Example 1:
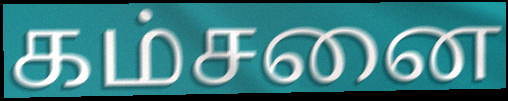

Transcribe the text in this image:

கம்சனை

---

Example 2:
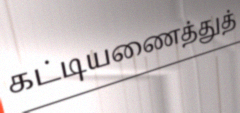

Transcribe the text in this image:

கட்டியணைத்துத்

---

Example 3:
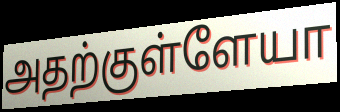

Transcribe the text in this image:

அதற்குள்ளேயா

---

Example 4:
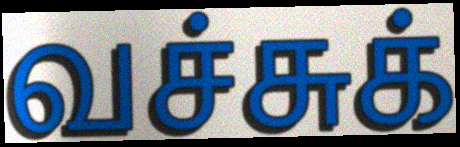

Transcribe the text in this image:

வச்சுக்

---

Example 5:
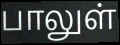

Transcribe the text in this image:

பாலுள்